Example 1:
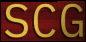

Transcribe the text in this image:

SCG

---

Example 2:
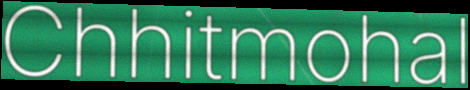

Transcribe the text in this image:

Chhitmohal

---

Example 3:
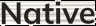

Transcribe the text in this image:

Native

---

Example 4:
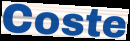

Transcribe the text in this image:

Coste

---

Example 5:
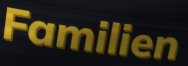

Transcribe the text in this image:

Familien